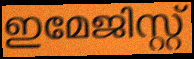
ഇമേജിസ്റ്റ്